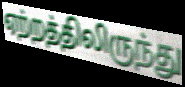
ஏற்றத்திலிருந்து